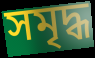
সমৃদ্ধ